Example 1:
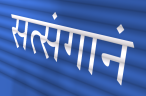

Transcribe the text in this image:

सत्संगानं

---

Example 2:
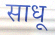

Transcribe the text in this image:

साधू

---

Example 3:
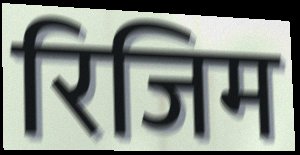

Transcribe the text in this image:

रिजिम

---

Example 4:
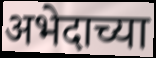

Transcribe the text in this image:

अभेदाच्या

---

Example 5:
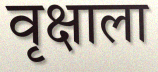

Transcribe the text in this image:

वृक्षाला